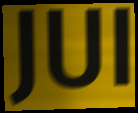
JUI